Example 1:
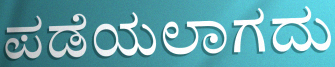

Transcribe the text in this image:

ಪಡೆಯಲಾಗದು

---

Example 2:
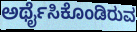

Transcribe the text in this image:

ಅರ್ಥೈಸಿಕೊಂಡಿರುವ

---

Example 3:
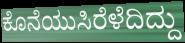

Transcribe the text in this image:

ಕೊನೆಯುಸಿರೆಳೆದಿದ್ದು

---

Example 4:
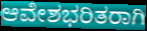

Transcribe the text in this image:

ಆವೇಶಭರಿತರಾಗಿ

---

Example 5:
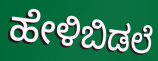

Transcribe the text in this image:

ಹೇಳಿಬಿಡಲೆ